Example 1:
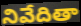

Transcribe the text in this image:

నివేదితా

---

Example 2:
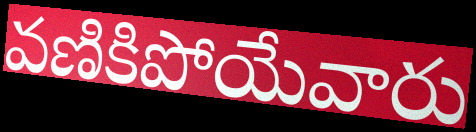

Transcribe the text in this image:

వణికిపోయేవారు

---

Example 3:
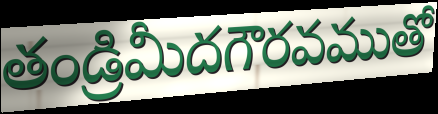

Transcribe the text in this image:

తండ్రిమీదగౌరవముతో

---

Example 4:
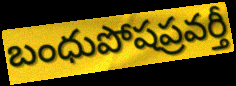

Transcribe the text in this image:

బంధుపోషప్రవర్తీ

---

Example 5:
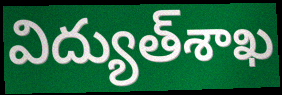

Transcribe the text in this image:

విద్యుత్‌శాఖ